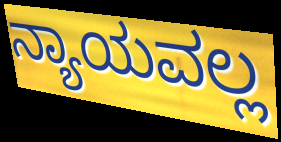
ನ್ಯಾಯವಲ್ಲ